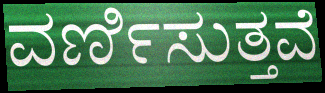
ವರ್ಣಿಸುತ್ತವೆ